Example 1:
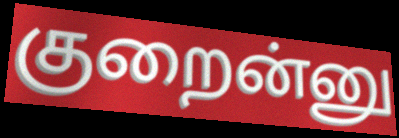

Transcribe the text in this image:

குறைன்னு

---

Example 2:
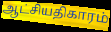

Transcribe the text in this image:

ஆட்சியதிகாரம்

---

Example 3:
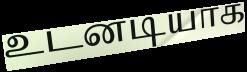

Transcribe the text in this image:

உடனடியாக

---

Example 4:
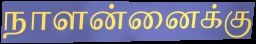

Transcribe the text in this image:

நாளன்னைக்கு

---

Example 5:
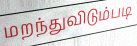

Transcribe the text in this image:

மறந்துவிடும்படி